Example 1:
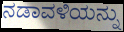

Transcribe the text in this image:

ನಡಾವಳಿಯನ್ನು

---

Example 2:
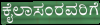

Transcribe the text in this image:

ಕೈಲಾಸಂರವರಿಗೆ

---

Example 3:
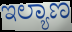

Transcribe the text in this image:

ಇಲ್ಯಾಣ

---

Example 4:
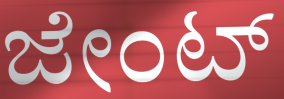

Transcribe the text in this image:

ಜೇಂಟ್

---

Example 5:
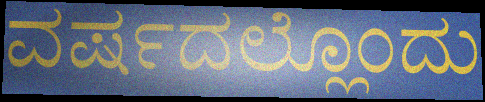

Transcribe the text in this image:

ವರ್ಷದಲ್ಲೊಂದು